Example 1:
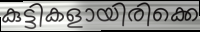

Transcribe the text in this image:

കുട്ടികളായിരിക്കെ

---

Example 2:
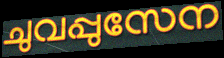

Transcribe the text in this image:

ചുവപ്പുസേന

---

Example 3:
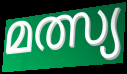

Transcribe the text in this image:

മത്സ്യ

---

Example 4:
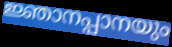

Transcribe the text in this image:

ജ്ഞാനപ്പാനയും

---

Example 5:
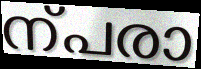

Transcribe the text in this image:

ന്പരാ